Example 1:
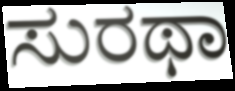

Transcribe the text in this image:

ಸುರಥಾ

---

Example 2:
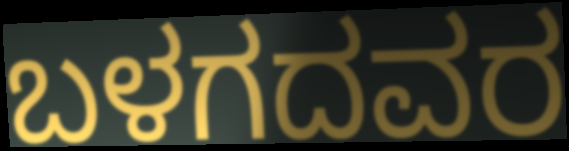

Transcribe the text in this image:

ಬಳಗದವರ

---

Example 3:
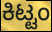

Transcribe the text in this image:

ಕಿಟ್ಟಂ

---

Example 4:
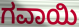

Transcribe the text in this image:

ಗವಾಯಿ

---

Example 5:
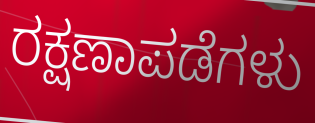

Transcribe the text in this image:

ರಕ್ಷಣಾಪಡೆಗಳು